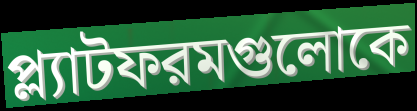
প্ল্যাটফরমগুলোকে